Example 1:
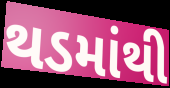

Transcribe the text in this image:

થડમાંથી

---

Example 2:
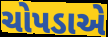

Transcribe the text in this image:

ચોપડાએ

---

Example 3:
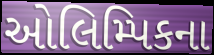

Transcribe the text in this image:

ઓલિમ્પિકના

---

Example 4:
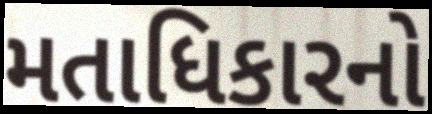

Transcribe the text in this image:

મતાધિકારનો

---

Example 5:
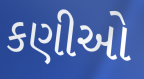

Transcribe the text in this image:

કણીઓ